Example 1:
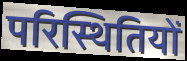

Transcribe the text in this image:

परिस्थितियों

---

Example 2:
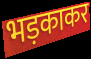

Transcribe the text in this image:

भड़काकर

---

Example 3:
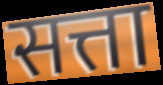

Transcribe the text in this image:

सत्ता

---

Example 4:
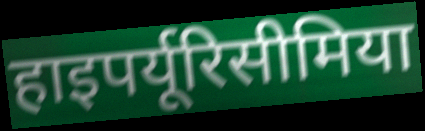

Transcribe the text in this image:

हाइपर्यूरिसीमिया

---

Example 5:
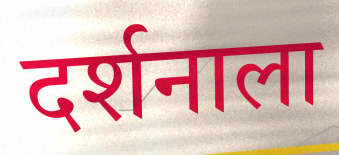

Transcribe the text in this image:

दर्शनाला